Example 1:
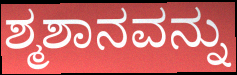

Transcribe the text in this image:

ಶ್ಮಶಾನವನ್ನು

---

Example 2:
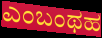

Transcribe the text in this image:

ಎಂಬಂಥಹ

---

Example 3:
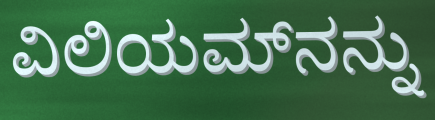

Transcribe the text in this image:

ವಿಲಿಯಮ್‌ನನ್ನು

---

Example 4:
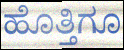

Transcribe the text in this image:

ಹೊತ್ತಿಗೂ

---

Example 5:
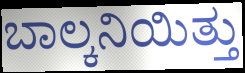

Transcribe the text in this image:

ಬಾಲ್ಕನಿಯಿತ್ತು